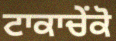
ਟਾਕਾਚੇਂਕੋ